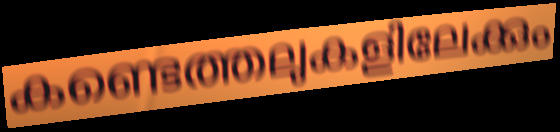
കണ്ടെത്തലുകളിലേക്കും